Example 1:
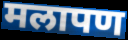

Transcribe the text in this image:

मलापण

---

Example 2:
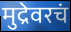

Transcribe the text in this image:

मुद्रेवरचं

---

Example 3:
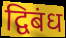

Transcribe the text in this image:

द्विबंध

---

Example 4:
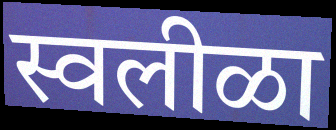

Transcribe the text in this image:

स्वलीळा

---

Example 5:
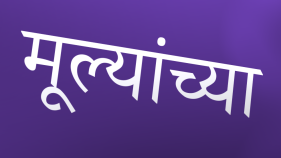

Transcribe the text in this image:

मूल्यांच्या